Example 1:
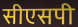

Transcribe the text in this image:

सीएसपी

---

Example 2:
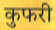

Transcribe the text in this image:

कुफरी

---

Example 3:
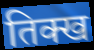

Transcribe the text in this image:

तिक्ख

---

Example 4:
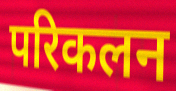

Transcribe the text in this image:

परिकलन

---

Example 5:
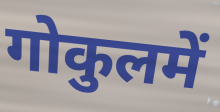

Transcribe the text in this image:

गोकुलमें